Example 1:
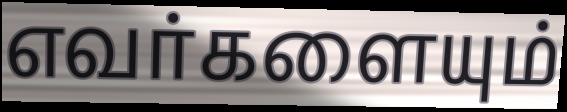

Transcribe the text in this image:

எவர்களையும்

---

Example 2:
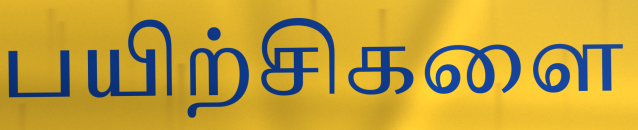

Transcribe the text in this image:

பயிற்சிகளை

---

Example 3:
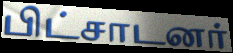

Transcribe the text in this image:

பிட்சாடனர்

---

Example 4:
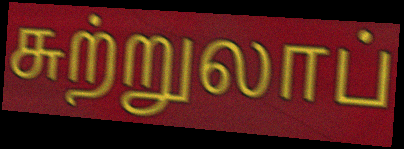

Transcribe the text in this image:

சுற்றுலாப்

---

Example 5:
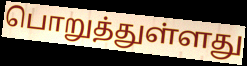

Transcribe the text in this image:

பொறுத்துள்ளது